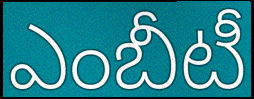
ఎంబీటీ